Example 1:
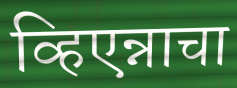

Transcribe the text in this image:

व्हिएन्नाचा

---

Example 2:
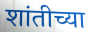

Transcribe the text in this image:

शांतीच्या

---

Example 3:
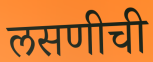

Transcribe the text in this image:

लसणीची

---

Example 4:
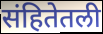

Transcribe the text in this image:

संहितेतली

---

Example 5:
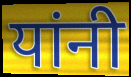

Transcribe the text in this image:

यांनी